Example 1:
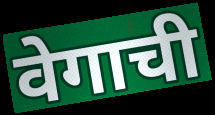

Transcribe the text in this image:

वेगाची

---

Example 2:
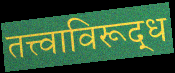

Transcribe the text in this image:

तत्त्वाविरूद्ध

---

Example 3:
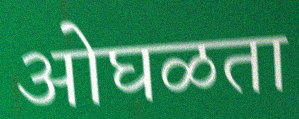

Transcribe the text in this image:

ओघळता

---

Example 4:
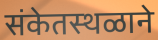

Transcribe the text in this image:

संकेतस्थळाने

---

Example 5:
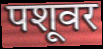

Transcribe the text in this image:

पशूवर